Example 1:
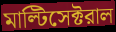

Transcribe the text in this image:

মাল্টিসেক্টরাল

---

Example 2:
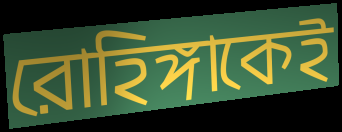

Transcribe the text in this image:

রোহিঙ্গাকেই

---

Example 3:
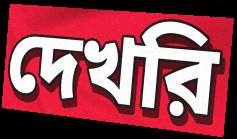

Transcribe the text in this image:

দেখরি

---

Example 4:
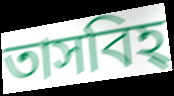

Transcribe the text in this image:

তাসবিহ্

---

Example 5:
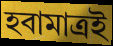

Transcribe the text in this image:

হবামাত্রই